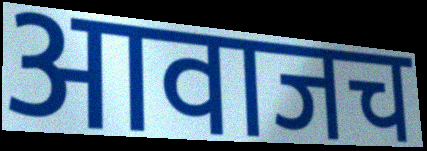
आवाजच